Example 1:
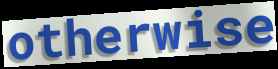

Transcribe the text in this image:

otherwise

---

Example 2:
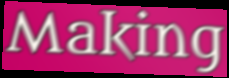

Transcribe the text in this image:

Making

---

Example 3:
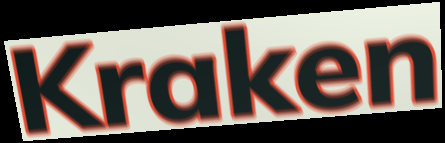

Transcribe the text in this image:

Kraken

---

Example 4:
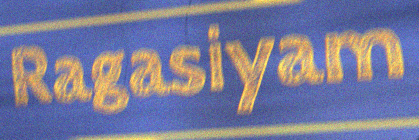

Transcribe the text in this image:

Ragasiyam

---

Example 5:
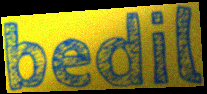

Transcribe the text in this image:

bedil